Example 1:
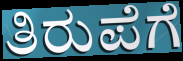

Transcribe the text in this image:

ತಿರುಪೆಗೆ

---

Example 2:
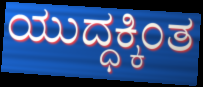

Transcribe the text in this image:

ಯುದ್ಧಕ್ಕಿಂತ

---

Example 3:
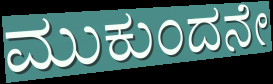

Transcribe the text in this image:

ಮುಕುಂದನೇ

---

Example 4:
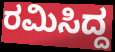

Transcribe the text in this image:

ರಮಿಸಿದ್ದ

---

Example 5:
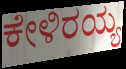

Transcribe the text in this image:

ಕೇಳಿರಯ್ಯ